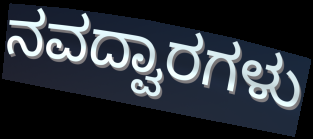
ನವದ್ವಾರಗಳು